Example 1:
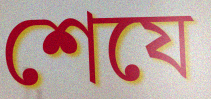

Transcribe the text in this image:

শেযে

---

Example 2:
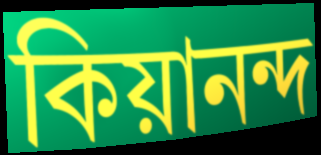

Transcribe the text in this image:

কিয়ানন্দ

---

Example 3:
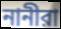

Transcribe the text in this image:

নানীরা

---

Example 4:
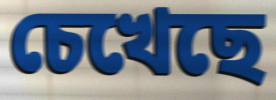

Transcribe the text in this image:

চেখেছে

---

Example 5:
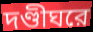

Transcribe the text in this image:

দণ্ডীঘরে